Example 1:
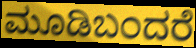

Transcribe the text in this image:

ಮೂಡಿಬಂದರೆ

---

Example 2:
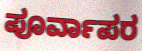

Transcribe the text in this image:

ಪೂರ್ವಾಪರ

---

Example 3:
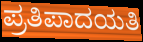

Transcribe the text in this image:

ಪ್ರತಿಪಾದಯತಿ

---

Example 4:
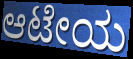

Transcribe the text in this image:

ಆಟೇಯ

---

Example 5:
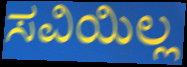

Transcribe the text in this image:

ಸವಿಯಿಲ್ಲ